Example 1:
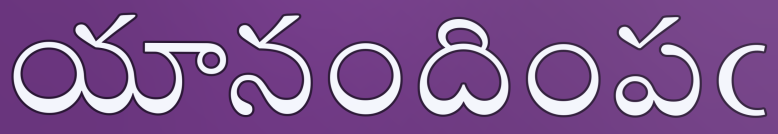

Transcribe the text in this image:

యానందింపఁ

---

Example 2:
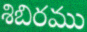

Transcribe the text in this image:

శిబిరము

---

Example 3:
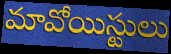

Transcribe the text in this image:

మావోయిస్టులు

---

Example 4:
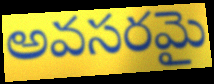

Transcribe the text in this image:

అవసరమై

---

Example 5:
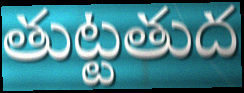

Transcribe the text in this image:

తుట్టతుద